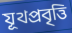
যূথপ্রবৃত্তি